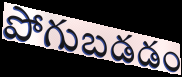
పోగుబడడం